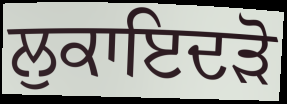
ਲੁਕਾਇਦੜੋ